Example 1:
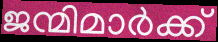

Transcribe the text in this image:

ജന്മിമാർക്ക്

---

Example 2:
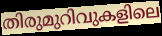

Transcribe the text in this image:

തിരുമുറിവുകളിലെ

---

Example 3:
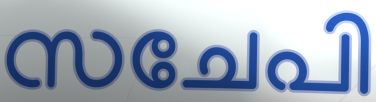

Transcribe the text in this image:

സചേപി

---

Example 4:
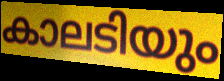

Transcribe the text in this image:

കാലടിയും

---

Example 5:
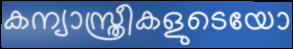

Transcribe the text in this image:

കന്യാസ്ത്രീകളുടെയോ